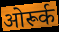
ओरूर्क